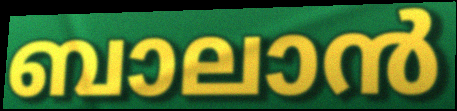
ബാലാൻ